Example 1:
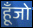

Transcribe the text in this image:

हूँजो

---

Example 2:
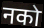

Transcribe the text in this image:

नको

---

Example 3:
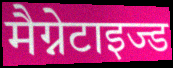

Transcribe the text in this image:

मैग्नेटाइज्ड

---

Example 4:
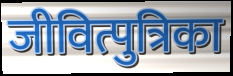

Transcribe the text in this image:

जीवित्पुत्रिका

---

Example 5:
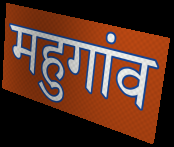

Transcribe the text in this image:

महुगांव